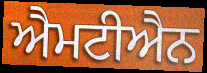
ਐਮਟੀਐਨ